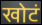
खोटं